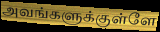
அவங்களுக்குள்ளே